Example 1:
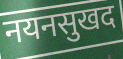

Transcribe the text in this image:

नयनसुखद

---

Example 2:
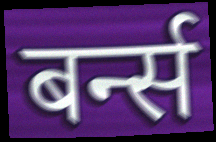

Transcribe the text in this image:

बर्न्स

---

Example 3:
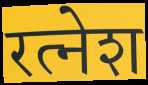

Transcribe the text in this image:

रत्नेश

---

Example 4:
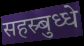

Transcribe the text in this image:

सहस्र्बुध्धे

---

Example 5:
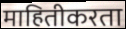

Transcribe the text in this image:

माहितीकरता